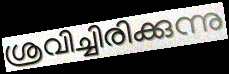
ശ്രവിച്ചിരിക്കുന്നു